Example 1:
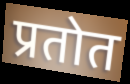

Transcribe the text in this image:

प्रतोत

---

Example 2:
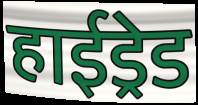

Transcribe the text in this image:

हाईड्रेड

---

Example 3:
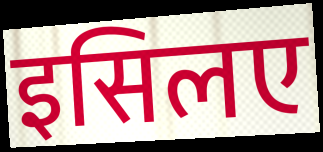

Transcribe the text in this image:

इसिलए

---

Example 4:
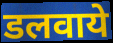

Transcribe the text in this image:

डलवाये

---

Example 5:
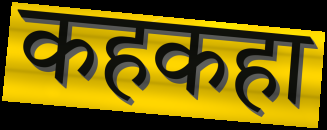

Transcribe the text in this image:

कहकहा